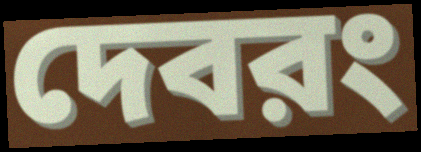
দেবরং